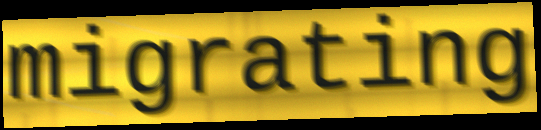
migrating